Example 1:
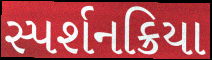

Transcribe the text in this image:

સ્પર્શનક્રિયા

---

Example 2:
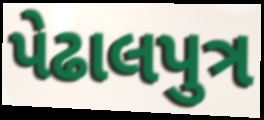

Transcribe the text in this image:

પેઢાલપુત્ર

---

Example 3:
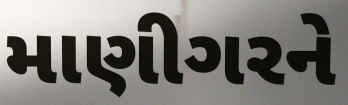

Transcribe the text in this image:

માણીગરને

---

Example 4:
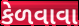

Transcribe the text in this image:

કેળવાવા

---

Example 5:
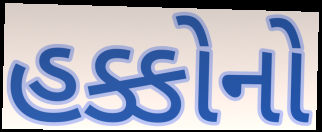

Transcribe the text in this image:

હક્કોનો